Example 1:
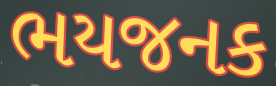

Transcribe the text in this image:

ભયજનક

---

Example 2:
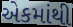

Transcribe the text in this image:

એકમાંથી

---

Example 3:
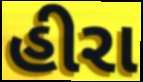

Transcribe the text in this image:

હીરા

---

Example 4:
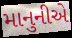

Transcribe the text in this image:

માનુનીએ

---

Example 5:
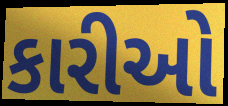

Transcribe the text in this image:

કારીઓ